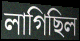
লাগিছিল